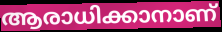
ആരാധിക്കാനാണ്